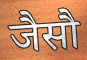
जैसौ